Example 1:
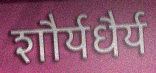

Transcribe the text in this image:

शौर्यधैर्य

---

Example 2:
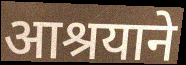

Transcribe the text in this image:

आश्रयाने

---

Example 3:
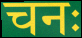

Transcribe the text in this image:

चनः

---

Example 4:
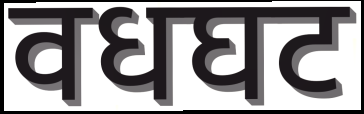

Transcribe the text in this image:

वधघट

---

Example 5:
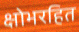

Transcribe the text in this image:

क्षोभरहित